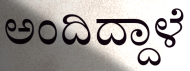
ಅಂದಿದ್ದಾಳೆ